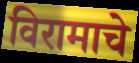
विरामाचे